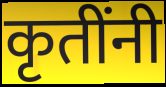
कृतींनी